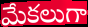
మేకలుగా